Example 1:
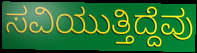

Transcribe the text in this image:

ಸವಿಯುತ್ತಿದ್ದೆವು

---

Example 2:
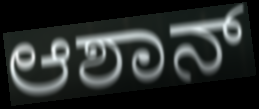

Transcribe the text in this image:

ಆಶಾನ್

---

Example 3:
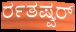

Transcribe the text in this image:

ರ್ರತಷ್ವರ್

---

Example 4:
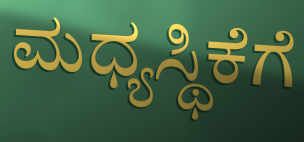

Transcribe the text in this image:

ಮಧ್ಯಸ್ಥಿಕೆಗೆ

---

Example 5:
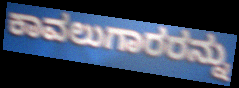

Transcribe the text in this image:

ಕಾವಲುಗಾರರನ್ನು